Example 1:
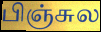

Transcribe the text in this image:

பிஞ்சுல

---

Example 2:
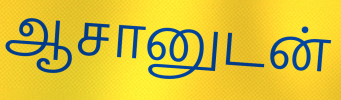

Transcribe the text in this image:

ஆசானுடன்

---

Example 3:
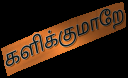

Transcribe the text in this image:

களிக்குமாறே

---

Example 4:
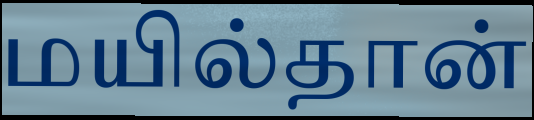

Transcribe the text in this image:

மயில்தான்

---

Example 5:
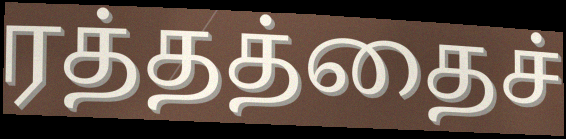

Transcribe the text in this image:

ரத்தத்தைச்